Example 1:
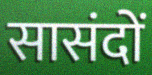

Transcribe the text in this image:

सासंदों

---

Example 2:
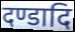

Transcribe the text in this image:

दण्डादि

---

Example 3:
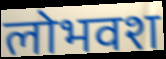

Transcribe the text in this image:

लोभवश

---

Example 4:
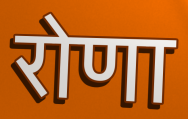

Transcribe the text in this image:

रोणा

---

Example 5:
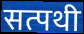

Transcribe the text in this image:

सत्पथी